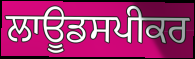
ਲਾਊਡਸਪੀਕਰ